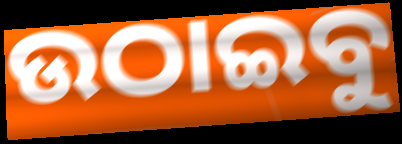
ଉଠାଇବୁ